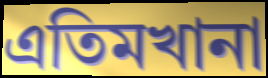
এতিমখানা